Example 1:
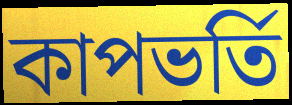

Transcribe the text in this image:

কাপভর্তি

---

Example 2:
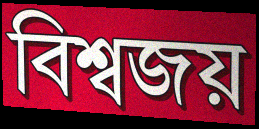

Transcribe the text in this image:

বিশ্বজয়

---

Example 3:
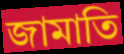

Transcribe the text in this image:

জামাতি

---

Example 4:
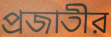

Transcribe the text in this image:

প্রজাতীর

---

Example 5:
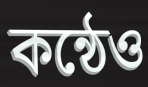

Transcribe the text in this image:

কন্ঠেও